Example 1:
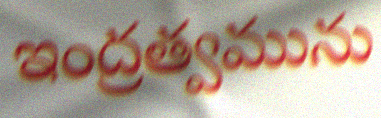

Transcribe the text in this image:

ఇంద్రత్వమును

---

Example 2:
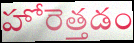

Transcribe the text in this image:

హోరెత్తడం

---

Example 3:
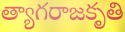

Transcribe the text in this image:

త్యాగరాజకృతి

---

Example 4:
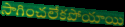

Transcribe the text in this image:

సాగించలేకపోయాయి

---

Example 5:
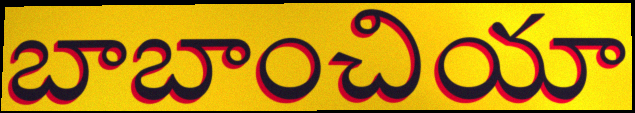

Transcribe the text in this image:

బాబాంచియా